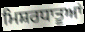
ਮਿਸ਼ਰਧਾਤੂਆਂ